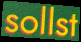
sollst